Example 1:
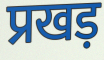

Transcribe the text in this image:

प्रखड़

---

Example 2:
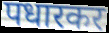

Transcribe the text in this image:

पधारकर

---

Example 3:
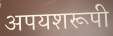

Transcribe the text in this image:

अपयशरूपी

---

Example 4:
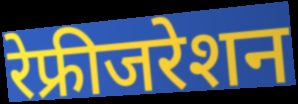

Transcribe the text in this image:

रेफ्रीजरेशन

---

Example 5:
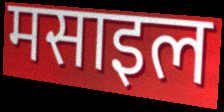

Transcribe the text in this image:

मसाइल